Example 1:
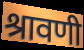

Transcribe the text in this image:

श्रावणी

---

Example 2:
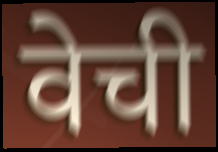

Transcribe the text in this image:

वेची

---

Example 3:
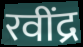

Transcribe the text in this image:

रवींद्र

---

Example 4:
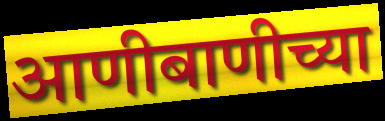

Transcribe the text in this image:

आणीबाणीच्या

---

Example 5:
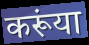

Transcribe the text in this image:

करूंया